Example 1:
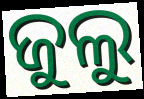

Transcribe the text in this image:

ଜୁଲୁ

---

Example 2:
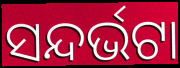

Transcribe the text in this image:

ସନ୍ଦର୍ଭଟା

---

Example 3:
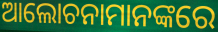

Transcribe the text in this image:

ଆଲୋଚନାମାନଙ୍କରେ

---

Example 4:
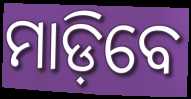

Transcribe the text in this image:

ମାଡ଼ିବେ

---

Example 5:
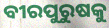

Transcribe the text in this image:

ବୀରପୁରୁଷକୁ